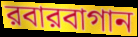
রবারবাগান